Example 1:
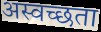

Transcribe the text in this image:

अस्वच्छता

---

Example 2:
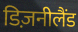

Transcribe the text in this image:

डिज़नीलैंड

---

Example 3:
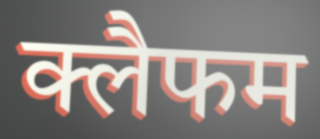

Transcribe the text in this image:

क्लैफम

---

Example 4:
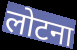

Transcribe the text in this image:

लोटना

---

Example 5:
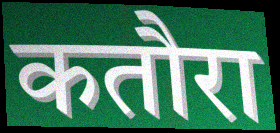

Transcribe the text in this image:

कतौरा